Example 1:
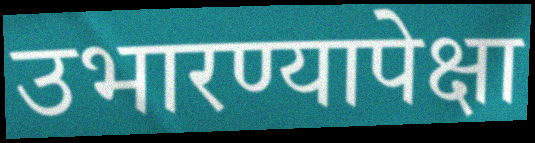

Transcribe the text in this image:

उभारण्यापेक्षा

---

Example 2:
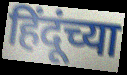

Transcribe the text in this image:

हिंदूंच्या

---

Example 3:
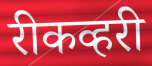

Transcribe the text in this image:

रीकव्हरी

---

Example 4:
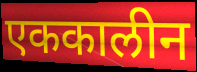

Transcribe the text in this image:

एककालीन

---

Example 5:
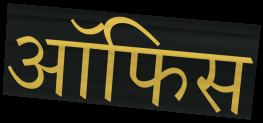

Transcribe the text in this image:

ऑफिस